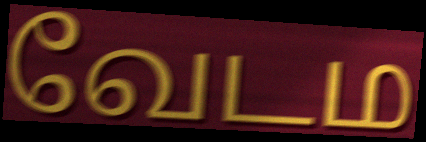
வேடம